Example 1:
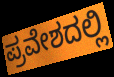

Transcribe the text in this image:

ಪ್ರವೇಶದಲ್ಲಿ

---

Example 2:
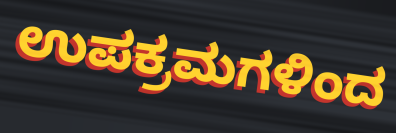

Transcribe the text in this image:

ಉಪಕ್ರಮಗಳಿಂದ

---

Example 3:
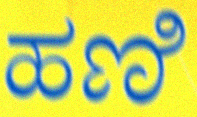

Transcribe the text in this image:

ಹಣಿ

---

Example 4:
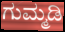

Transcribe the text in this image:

ಗುಮ್ಮಡಿ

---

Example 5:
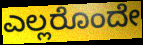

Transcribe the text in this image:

ಎಲ್ಲರೊಂದೇ